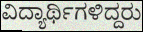
ವಿದ್ಯಾರ್ಥಿಗಳಿದ್ದರು